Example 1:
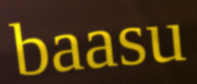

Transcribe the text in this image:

baasu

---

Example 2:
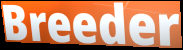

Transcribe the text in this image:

Breeder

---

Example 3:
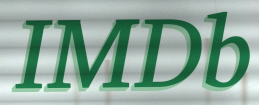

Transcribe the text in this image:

IMDb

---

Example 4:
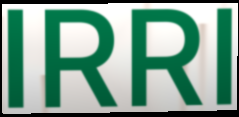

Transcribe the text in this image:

IRRI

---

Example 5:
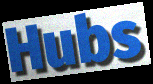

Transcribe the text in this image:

Hubs